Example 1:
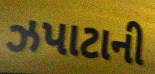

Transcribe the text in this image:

ઝપાટાની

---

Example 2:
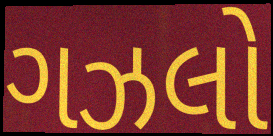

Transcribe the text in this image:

ગઝલો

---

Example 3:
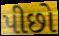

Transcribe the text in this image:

પીછો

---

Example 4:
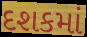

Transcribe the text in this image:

દશકમાં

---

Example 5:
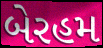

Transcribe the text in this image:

બેરહમ